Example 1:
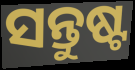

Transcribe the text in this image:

ସନ୍ତୁଷ୍ଟ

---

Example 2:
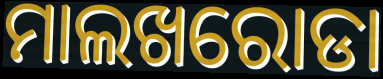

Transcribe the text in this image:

ମାଲଖରୋଡା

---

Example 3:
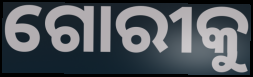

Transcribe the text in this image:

ଗୋରୀକୁ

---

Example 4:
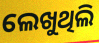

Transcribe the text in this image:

ଲେଖୁଥିଲି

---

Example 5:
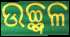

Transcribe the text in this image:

ଉଚ୍ଛ୍ଵଳ